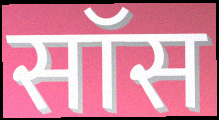
सॉस